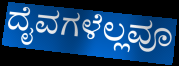
ದೈವಗಳೆಲ್ಲವೂ